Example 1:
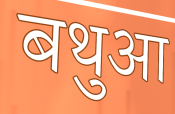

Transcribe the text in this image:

बथुआ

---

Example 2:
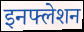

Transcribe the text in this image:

इनफ्लेशन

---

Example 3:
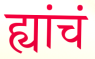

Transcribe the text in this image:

ह्यांचं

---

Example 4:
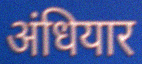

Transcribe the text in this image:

अंधियार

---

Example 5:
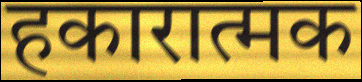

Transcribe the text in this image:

हकारात्मक